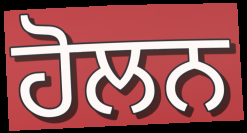
ਹੋਲਨ